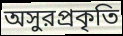
অসুরপ্রকৃতি